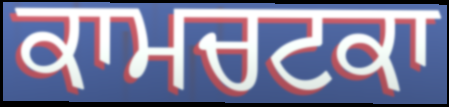
ਕਾਮਚਟਕਾ